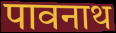
पावनाथ